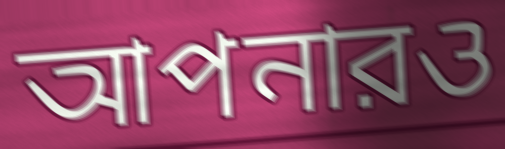
আপনারও